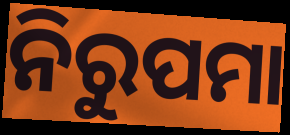
ନିରୁପମା